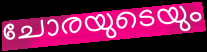
ചോരയുടെയും